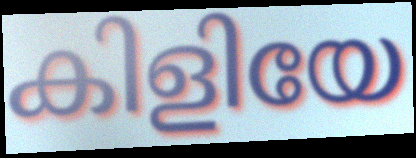
കിളിയേ